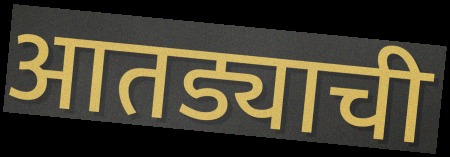
आतड्याची